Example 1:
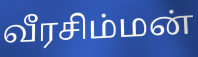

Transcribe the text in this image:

வீரசிம்மன்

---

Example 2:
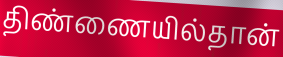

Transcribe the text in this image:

திண்ணையில்தான்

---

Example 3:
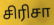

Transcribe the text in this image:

சிரிசா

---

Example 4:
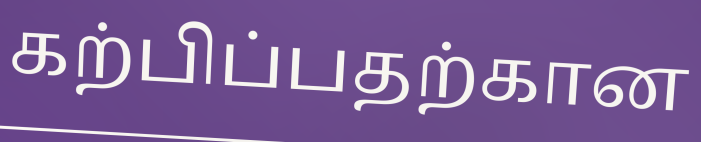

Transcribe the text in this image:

கற்பிப்பதற்கான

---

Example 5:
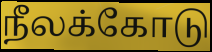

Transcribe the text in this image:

நீலக்கோடு